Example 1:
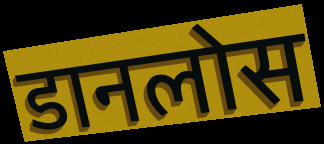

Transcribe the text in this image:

डानलोस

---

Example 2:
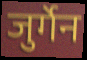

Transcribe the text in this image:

जुर्गेन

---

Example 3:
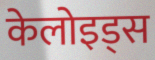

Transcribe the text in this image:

केलोइड्स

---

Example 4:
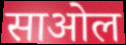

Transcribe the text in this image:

साओल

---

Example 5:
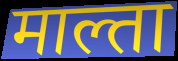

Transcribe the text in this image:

माल्ता